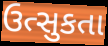
ઉત્સુકતા